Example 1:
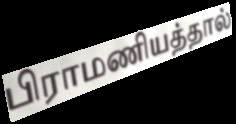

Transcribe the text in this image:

பிராமணியத்தால்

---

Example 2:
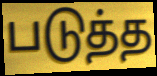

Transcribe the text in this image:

படுத்த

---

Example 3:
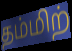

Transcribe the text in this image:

தம்மிற்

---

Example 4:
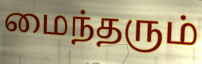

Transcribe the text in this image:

மைந்தரும்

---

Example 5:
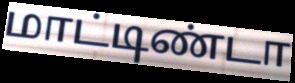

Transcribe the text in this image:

மாட்டிண்டா